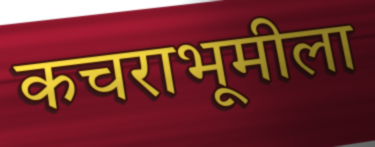
कचराभूमीला